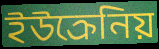
ইউক্রেনিয়